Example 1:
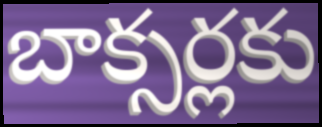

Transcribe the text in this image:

బాక్సర్లకు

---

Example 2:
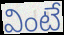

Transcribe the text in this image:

వింటే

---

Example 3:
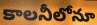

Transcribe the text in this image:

కాలనీలోనూ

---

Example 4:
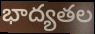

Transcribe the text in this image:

భాద్యతల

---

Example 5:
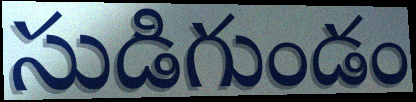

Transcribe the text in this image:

సుడిగుండం